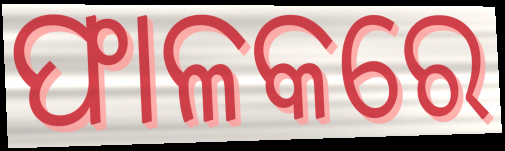
ଫାଳକରେ